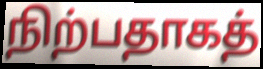
நிற்பதாகத்